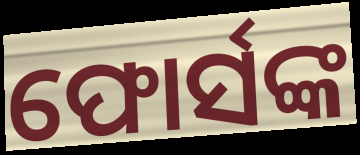
ଫୋର୍ସଙ୍କ